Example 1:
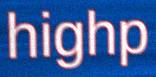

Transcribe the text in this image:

highp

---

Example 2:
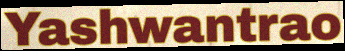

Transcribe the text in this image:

Yashwantrao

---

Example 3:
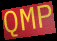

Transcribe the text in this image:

QMP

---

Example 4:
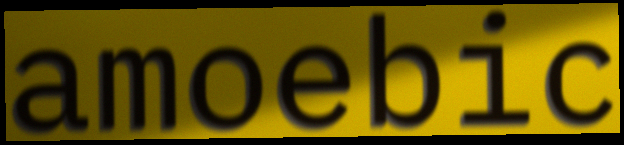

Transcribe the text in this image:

amoebic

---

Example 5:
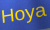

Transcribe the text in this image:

Hoya